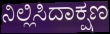
ನಿಲ್ಲಿಸಿದಾಕ್ಷಣ